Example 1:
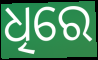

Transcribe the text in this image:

ଧିରେ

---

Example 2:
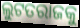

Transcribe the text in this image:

ଲୁଟତରାଜକୁ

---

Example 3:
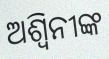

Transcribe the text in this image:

ଅଶ୍ୱିନୀଙ୍କ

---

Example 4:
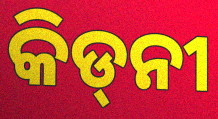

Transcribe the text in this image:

କିଡ୍‍ନୀ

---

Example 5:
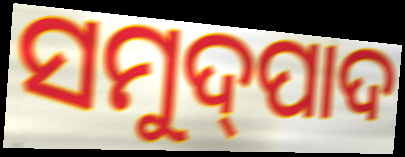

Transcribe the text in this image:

ସମୁଦ୍‌ପାଦ